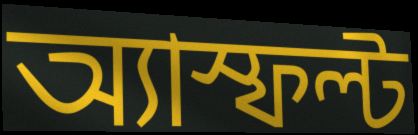
অ্যাস্ফল্ট